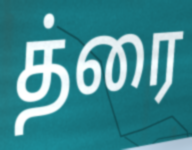
த்ரை